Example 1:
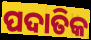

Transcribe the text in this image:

ପଦାତିକ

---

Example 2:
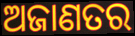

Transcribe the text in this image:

ଅଜାଣତର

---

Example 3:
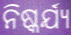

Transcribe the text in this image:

ନିଷ୍କର୍ଯ୍ୟ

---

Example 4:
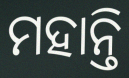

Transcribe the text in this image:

ମହାନ୍ତି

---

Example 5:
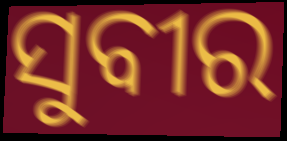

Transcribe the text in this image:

ସୁବୀର